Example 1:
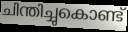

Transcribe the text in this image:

ചിന്തിച്ചുകൊണ്ട്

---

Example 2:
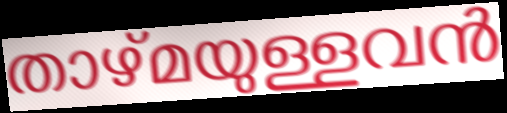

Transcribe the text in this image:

താഴ്മയുള്ളവൻ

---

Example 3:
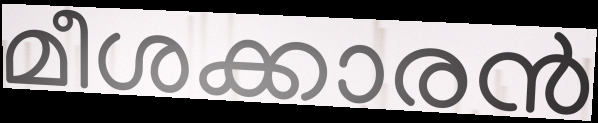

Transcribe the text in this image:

മീശക്കാരൻ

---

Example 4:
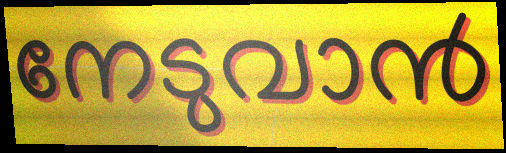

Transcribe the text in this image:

നേടുവാൻ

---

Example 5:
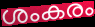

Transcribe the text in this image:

ശംകരം